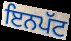
ਇਨਪੱਟ